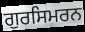
ਗੁਰਸਿਮਰਨ